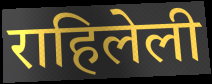
राहिलेली